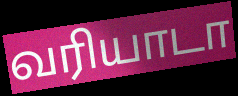
வரியாடா